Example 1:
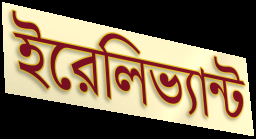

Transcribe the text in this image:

ইরেলিভ্যান্ট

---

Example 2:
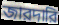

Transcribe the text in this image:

জারদারি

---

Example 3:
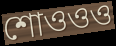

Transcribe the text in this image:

শোওওও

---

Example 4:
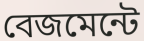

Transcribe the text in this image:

বেজমেন্টে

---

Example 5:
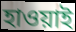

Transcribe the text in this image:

হাওয়াই